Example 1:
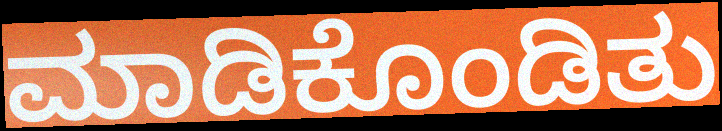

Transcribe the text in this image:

ಮಾಡಿಕೊಂಡಿತು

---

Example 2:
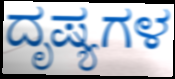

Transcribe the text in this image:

ದೃಷ್ಯಗಳ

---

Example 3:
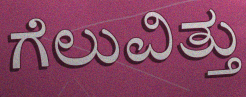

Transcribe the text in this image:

ಗೆಲುವಿತ್ತು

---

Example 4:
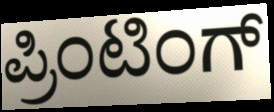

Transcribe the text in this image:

ಪ್ರಿಂಟಿಂಗ್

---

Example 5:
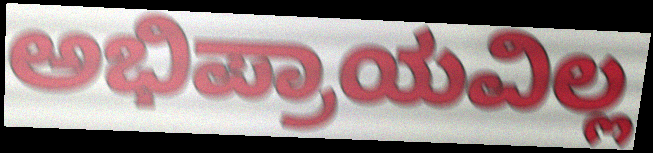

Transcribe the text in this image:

ಅಭಿಪ್ರಾಯವಿಲ್ಲ